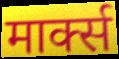
मार्क्स